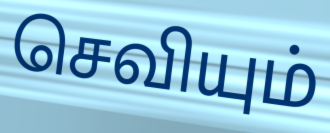
செவியும்